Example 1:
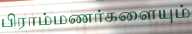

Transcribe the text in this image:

பிராம்மணர்களையும்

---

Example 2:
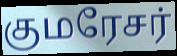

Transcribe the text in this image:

குமரேசர்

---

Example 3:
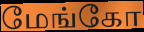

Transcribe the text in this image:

மேங்கோ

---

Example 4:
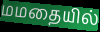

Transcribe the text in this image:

மமதையில்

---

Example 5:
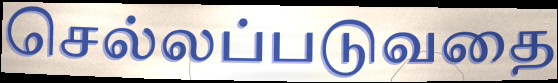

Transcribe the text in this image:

செல்லப்படுவதை